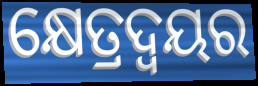
କ୍ଷେତ୍ରଦ୍ୱୟର